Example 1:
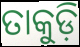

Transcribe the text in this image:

ତାକୁଡ଼ି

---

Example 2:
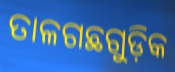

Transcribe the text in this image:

ତାଳଗଛଗୁଡ଼ିକ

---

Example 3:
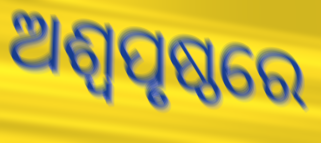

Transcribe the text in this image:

ଅଶ୍ୱପୃଷ୍ଠରେ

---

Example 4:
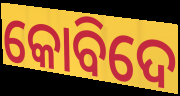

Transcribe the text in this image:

କୋବିଦେ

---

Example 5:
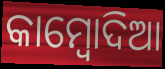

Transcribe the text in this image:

କାମ୍ବୋଦିଆ